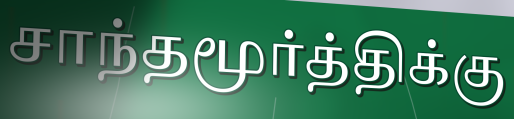
சாந்தமூர்த்திக்கு